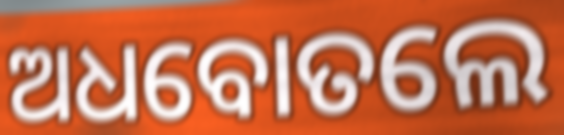
ଅଧବୋତଲେ